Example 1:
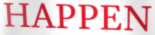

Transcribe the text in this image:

HAPPEN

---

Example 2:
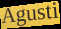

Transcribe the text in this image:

Agusti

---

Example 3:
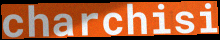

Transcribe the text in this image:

charchisi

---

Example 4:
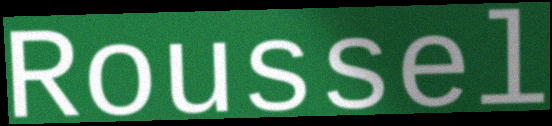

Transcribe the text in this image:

Roussel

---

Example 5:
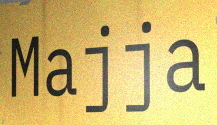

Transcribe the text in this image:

Majja